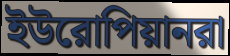
ইউরোপিয়ানরা